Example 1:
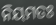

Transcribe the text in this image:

ନିୟମତଃ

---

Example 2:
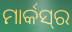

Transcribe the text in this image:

ମାର୍କସ୍‍ର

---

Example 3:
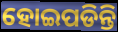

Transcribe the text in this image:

ହୋଇପଡିନ୍ତି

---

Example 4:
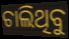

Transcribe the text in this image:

ଚାଲିଥିବୁ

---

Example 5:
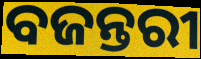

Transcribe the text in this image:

ବଜନ୍ତରୀ